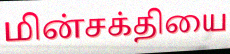
மின்சக்தியை